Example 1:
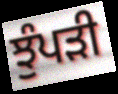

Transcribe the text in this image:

ਝੁੰਪੜੀ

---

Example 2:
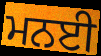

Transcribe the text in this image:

ਮਨਈ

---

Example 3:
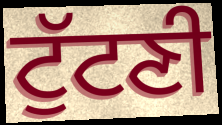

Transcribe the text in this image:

ਟੁੱਟਣੀ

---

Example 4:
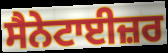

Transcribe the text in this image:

ਸੈਨੇਟਾਈਜ਼ਰ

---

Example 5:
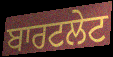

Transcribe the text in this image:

ਬਾਰਟਲੇਟ